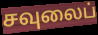
சவுலைப்